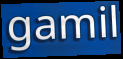
gamil